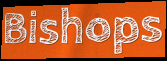
Bishops